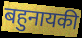
बहुनायकी